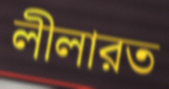
লীলারত